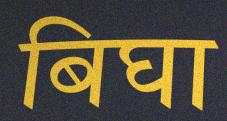
बिघा